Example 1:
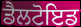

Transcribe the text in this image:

ਡੈਲਟੋਇਡ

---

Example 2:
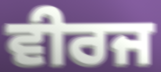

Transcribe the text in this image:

ਵੀਰਜ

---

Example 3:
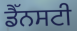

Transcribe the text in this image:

ਡੈੱਨਸਟੀ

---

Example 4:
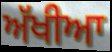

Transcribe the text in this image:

ਅੱਖੀਆ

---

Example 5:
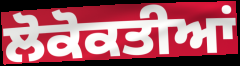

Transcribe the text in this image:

ਲੋਕੋਕਤੀਆਂ